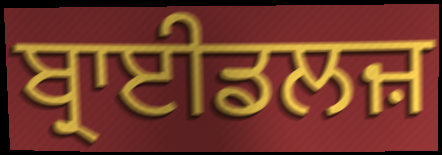
ਬ੍ਰਾਈਡਲਜ਼